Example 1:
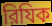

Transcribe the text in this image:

রিযিক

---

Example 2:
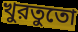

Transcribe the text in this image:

খুরতুতো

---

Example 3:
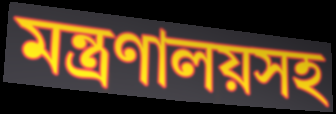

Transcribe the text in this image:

মন্ত্রণালয়সহ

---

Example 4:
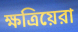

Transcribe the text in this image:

ক্ষত্রিয়েরা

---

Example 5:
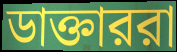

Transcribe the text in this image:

ডাক্তাররা